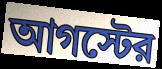
আগস্টের